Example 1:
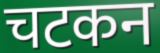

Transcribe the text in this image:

चटकन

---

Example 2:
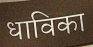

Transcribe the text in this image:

धाविका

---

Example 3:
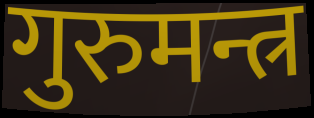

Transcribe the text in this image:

गुरुमन्त्र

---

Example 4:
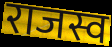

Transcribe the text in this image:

राजस्‍व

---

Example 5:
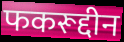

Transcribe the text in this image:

फकरूद्दीन